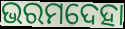
ଭରମଦେହା